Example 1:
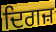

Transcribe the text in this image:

ਦਿਗਜ਼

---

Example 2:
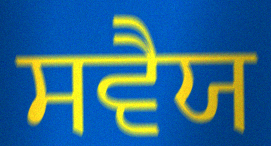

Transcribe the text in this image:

ਸਵੈਯ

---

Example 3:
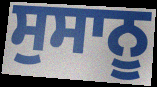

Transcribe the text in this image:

ਸੁਸਾਨੂ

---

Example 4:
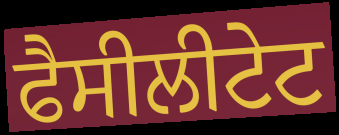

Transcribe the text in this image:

ਫੈਸੀਲੀਟੇਟ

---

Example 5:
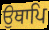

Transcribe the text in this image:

ਉਥਾਪਿ